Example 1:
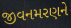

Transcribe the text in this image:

જીવનમરણને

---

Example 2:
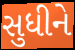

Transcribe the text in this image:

સુધીને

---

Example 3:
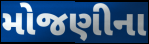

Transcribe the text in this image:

મોજણીના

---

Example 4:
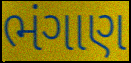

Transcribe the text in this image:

ભંગાણ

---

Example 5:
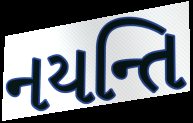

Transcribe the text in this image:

નયન્તિ